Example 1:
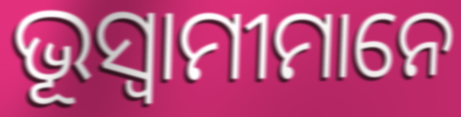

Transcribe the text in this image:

ଭୂସ୍ୱାମୀମାନେ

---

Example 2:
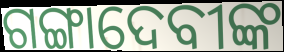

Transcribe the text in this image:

ଗଙ୍ଗାଦେବୀଙ୍କ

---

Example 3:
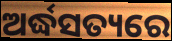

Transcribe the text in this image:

ଅର୍ଦ୍ଧସତ୍ୟରେ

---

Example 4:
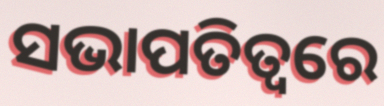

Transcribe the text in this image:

ସଭାପତିତ୍ଵରେ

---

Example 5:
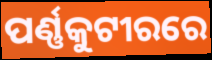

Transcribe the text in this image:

ପର୍ଣ୍ଣକୁଟୀରରେ